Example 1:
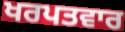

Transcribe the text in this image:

ਖਰਪਤਵਾਰ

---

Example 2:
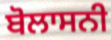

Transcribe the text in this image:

ਬੋਲਾਸਨੀ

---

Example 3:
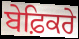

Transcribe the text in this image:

ਬੇਫ਼ਿਕਰੇ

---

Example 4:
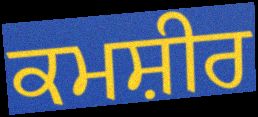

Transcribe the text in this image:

ਕਮਸ਼ੀਰ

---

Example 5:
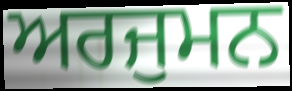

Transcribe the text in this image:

ਅਰਜੁਮਨ